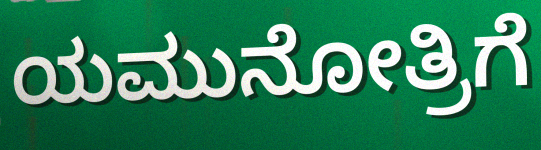
ಯಮುನೋತ್ರಿಗೆ